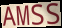
AMSS